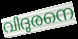
വിദുരനെ